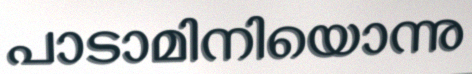
പാടാമിനിയൊന്നു